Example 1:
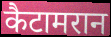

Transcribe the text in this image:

कैटामरान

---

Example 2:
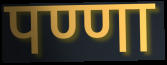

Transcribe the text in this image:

पण्णा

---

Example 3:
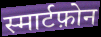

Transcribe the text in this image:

स्‍मार्टफ़ोन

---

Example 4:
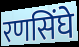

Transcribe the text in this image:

रणसिंघे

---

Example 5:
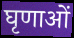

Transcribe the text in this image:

घृणाओं